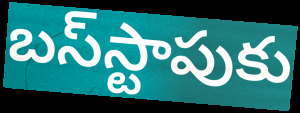
బస్‌స్టాపుకు